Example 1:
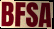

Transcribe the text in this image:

BFSA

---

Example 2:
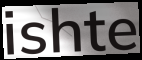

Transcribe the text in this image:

ishte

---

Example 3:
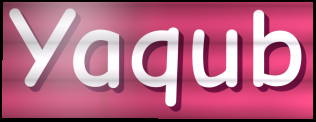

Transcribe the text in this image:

Yaqub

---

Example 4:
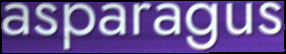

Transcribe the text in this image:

asparagus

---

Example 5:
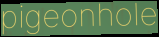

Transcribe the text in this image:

pigeonhole